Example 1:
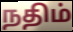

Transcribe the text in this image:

நதிம்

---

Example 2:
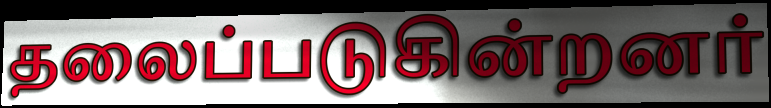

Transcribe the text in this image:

தலைப்படுகின்றனர்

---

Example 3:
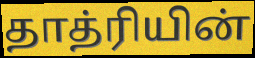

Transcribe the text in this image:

தாத்ரியின்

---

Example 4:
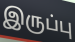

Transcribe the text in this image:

இருப்பு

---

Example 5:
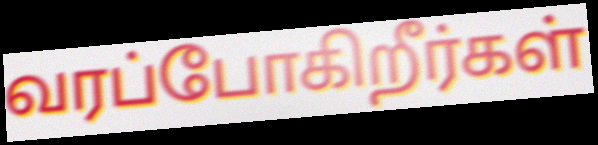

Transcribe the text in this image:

வரப்போகிறீர்கள்